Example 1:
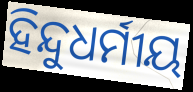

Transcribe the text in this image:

ହିନ୍ଦୁଧର୍ମୀୟ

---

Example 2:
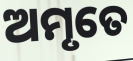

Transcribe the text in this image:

ଅମୃତେ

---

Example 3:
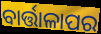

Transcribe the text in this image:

ବାର୍ତ୍ତାଳାପର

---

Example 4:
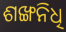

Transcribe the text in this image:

ଶଙ୍ଖନିଧି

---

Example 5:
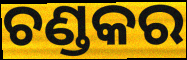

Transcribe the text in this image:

ଚଣ୍ଡକର